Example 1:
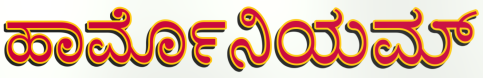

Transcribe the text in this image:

ಹಾರ್ಮೊನಿಯಮ್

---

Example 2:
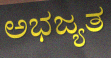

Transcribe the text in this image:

ಅಭಜ್ಯತ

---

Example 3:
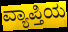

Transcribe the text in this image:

ವ್ಯಾಪ್ತಿಯ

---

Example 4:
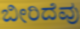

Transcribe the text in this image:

ಬೀರಿದೆವು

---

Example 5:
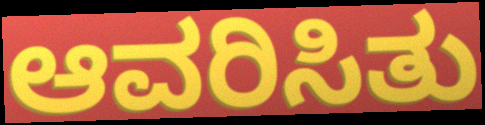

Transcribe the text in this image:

ಆವರಿಸಿತು